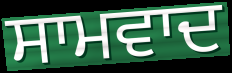
ਸਾਮਵਾਦ